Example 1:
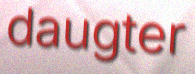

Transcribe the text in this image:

daugter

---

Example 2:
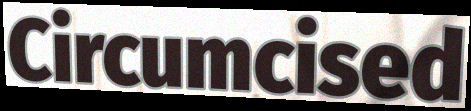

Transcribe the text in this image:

Circumcised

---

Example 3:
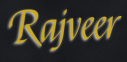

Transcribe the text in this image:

Rajveer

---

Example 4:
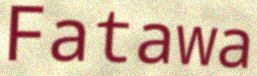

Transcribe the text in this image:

Fatawa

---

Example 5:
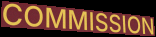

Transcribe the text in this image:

COMMISSION